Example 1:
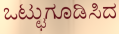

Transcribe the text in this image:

ಒಟ್ಟುಗೂಡಿಸಿದ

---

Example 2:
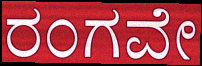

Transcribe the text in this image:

ರಂಗವೇ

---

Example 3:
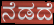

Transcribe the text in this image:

ನೆಡದೆ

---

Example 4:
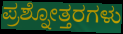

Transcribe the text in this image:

ಪ್ರಶ್ನೋತ್ತರಗಳು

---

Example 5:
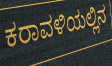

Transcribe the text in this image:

ಕರಾವಳಿಯಲ್ಲಿನ